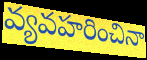
వ్యవహరించినా